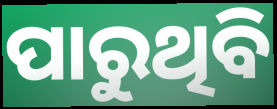
ପାରୁଥିବି